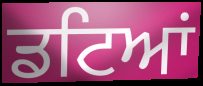
ਡਟਿਆਂ